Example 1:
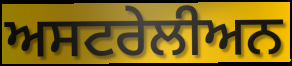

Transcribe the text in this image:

ਅਸਟਰੇਲੀਅਨ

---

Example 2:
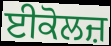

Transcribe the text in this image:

ਈਕੋਲਜ਼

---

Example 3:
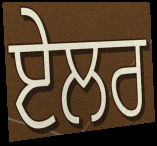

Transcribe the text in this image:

ਏਲਰ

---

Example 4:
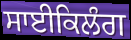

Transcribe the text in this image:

ਸਾਈਕਿਲੰਗ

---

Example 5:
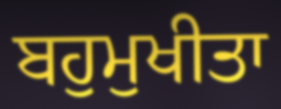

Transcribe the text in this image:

ਬਹੁਮੁਖੀਤਾ